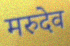
मरुदेव